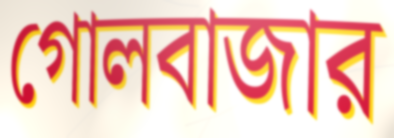
গোলবাজার